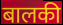
बालकी